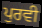
ਪੁਰਵੀ